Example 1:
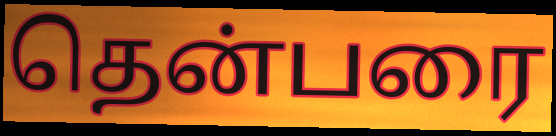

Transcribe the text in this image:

தென்பரை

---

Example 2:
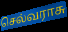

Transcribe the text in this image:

செல்வராசு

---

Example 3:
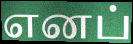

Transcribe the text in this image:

எனப்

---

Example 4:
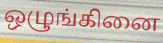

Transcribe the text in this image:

ஒழுங்கினை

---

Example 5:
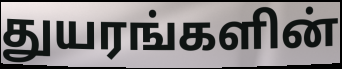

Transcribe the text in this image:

துயரங்களின்